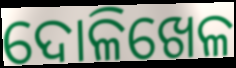
ଦୋଳିଖେଳ